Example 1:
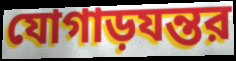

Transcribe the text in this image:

যোগাড়যন্তর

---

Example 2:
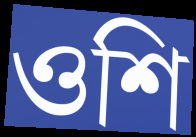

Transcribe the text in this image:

ওশি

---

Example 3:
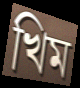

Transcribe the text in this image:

খিম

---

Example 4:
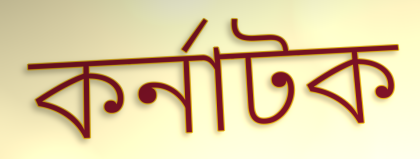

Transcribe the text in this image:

কর্নাটক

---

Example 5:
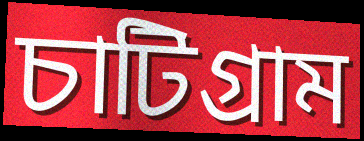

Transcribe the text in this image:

চাটিগ্রাম